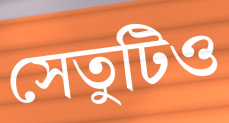
সেতুটিও